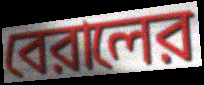
বেরালের